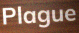
Plague